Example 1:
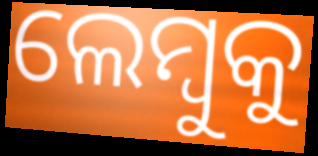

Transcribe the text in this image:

ଲେମ୍ବୁକୁ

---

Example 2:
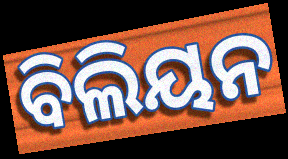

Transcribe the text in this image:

ବିଲିୟନ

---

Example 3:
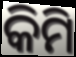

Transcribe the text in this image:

କିମି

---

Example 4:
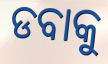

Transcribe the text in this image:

ଡବାକୁ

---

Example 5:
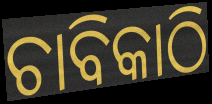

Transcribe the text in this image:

ଚାବିକାଠି